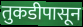
तुकडीपासून